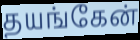
தயங்கேன்